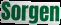
Sorgen